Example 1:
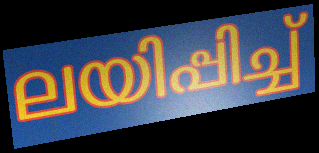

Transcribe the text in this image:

ലയിപ്പിച്ച്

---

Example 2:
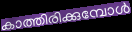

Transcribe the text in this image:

കാത്തിരിക്കുമ്പോൾ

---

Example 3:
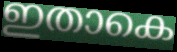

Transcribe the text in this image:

ഇതാകെ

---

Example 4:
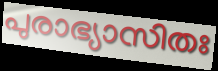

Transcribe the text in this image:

പുരാഭ്യാസിതഃ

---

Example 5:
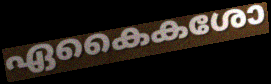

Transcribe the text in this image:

ഏകൈകശോ